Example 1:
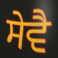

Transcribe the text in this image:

ਸੇਵੈ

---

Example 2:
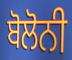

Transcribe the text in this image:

ਬੋਲੋਨੀ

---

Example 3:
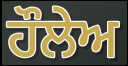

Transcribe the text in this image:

ਹੌਲੇਅ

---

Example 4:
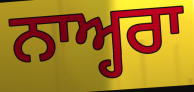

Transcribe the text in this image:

ਨਾਅ੍ਹਰਾ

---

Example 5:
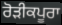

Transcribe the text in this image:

ਰੋੜੀਕਪੂਰਾ